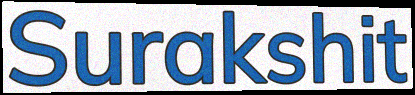
Surakshit